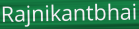
Rajnikantbhai